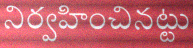
నిర్వహించినట్టు